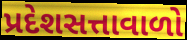
પ્રદેશસત્તાવાળો